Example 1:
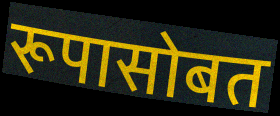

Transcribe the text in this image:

रूपासोबत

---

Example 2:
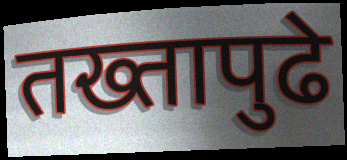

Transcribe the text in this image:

तख्तापुढे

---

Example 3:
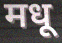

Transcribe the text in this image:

मधू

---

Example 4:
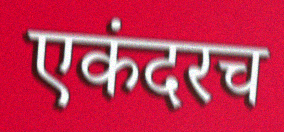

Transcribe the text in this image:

एकंदरच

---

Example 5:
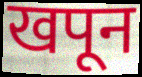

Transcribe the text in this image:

खपून